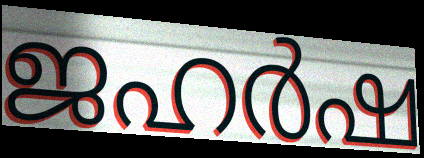
ജഹർഷ